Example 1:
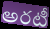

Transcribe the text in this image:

అరటీ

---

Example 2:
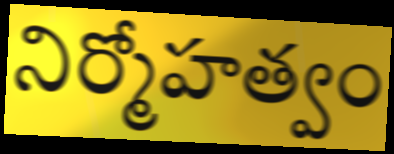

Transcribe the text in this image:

నిర్మోహత్వం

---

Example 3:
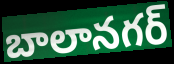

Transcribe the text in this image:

బాలానగర్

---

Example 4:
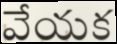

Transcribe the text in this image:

వేయక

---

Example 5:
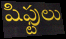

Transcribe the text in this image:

షిఫ్టులు